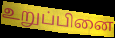
உறுப்பினை